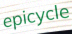
epicycle